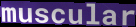
muscular